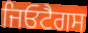
ਜਿਓਟੈਗਸ